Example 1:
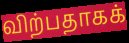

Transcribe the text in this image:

விற்பதாகக்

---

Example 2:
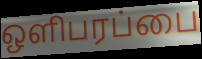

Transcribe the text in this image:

ஒளிபரப்பை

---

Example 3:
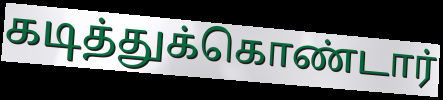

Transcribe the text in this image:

கடித்துக்கொண்டார்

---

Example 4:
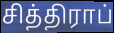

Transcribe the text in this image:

சித்திராப்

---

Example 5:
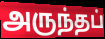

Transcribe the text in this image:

அருந்தப்